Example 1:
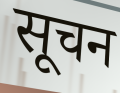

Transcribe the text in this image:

सूचन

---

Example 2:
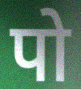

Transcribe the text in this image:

पो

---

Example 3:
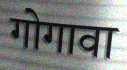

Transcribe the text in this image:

गोगावा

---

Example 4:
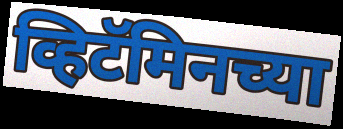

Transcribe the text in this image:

व्हिटॅमिनच्या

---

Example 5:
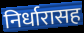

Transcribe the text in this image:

निर्धारासह